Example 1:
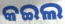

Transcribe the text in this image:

କଇଲ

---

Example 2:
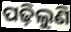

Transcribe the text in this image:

ପଢ଼ିଲୁଣି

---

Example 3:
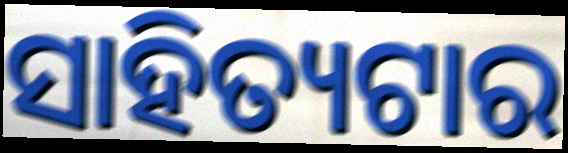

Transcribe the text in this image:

ସାହିତ୍ୟଟାର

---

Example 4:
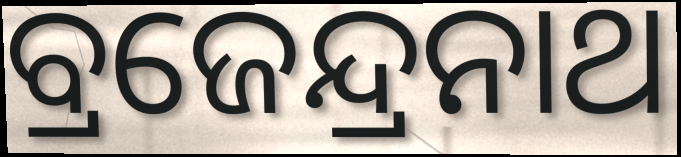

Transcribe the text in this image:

ବ୍ରଜେନ୍ଦ୍ରନାଥ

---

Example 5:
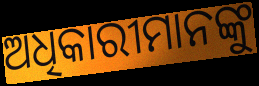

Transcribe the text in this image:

ଅଧିକାରୀମାନଙ୍କୁ